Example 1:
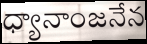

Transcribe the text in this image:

ధ్యానాంజనేన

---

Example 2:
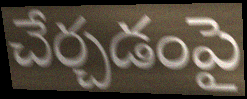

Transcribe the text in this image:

చేర్చడంపై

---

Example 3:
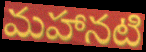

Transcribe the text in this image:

మహానటి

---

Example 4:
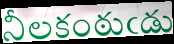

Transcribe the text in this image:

నీలకంఠుఁడు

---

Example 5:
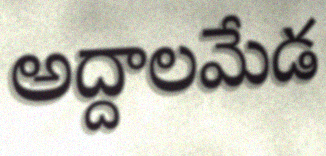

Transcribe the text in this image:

అద్దాలమేడ